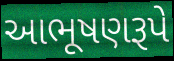
આભૂષણરૂપે